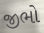
જીભો